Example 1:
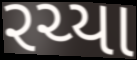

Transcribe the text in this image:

રચ્યા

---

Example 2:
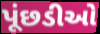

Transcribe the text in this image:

પૂંછડીઓ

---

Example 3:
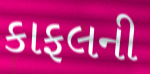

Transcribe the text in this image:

કાફલની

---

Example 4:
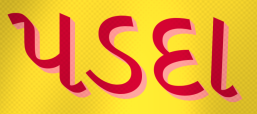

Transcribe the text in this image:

પડદા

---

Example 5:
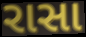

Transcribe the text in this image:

રાસા